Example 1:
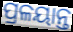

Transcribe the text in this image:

ପ୍ରଳୟାନ୍ତ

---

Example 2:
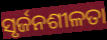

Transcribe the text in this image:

ସୃର୍ଜନଶୀଳତା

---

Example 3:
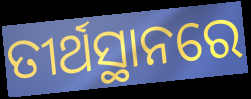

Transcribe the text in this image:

ତୀର୍ଥସ୍ଥାନରେ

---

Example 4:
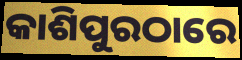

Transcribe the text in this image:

କାଶିପୁରଠାରେ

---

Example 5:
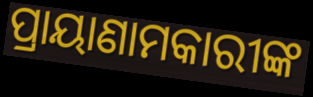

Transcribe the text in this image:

ପ୍ରାୟାଣାମକାରୀଙ୍କ